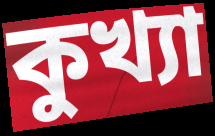
কুখ্যা